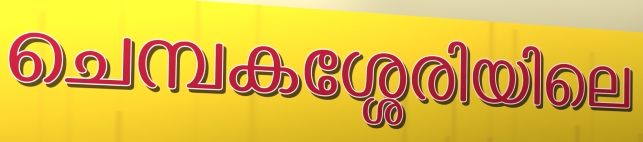
ചെമ്പകശ്ശേരിയിലെ